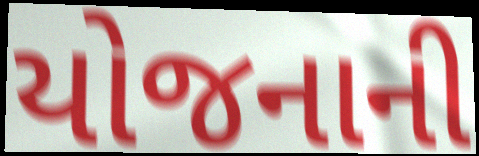
યોજનાની